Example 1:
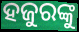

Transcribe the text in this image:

ହଜୁରଙ୍କୁ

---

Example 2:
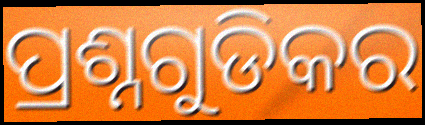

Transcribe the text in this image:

ପ୍ରଶ୍ନଗୁଡିକର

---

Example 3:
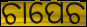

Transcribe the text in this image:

ଚାପେଚ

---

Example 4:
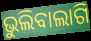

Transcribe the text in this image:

ଭୁଲିବାଲାଗି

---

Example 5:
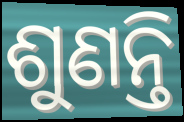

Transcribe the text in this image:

ଶୁଣନ୍ତି